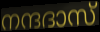
നന്ദദാസ്